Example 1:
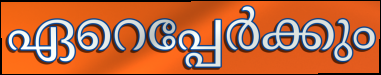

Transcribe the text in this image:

ഏറെപ്പേർക്കും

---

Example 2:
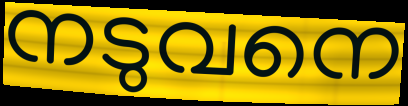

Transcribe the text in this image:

നടുവനെ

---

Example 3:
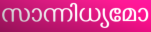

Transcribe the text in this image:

സാന്നിധ്യമോ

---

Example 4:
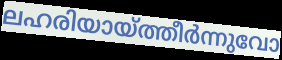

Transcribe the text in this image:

ലഹരിയായ്ത്തീർന്നുവോ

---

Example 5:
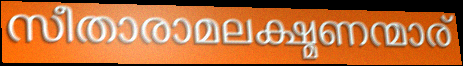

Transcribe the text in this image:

സീതാരാമലക്ഷ്മണന്മാര്